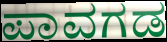
ಪಾವಗಡ